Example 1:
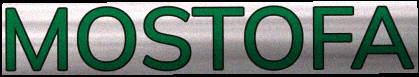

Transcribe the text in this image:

MOSTOFA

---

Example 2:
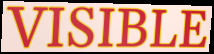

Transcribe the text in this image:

VISIBLE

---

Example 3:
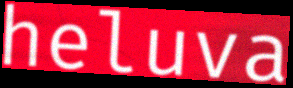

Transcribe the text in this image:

heluva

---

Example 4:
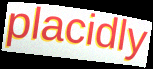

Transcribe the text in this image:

placidly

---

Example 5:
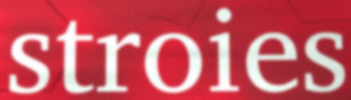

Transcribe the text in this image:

stroies